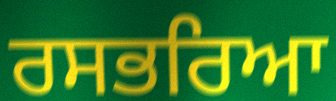
ਰਸਭਰਿਆ